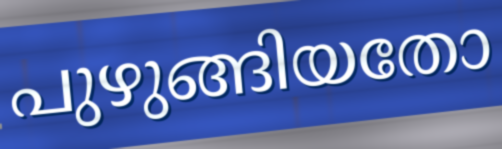
പുഴുങ്ങിയതോ